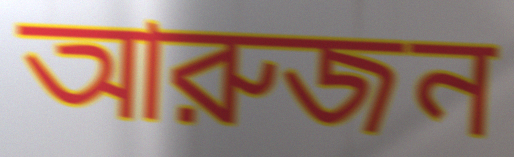
আৰুজন